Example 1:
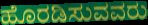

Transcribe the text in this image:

ಹೊರಡಿಸುವವರು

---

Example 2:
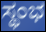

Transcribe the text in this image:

ಸ್ಥಂಭ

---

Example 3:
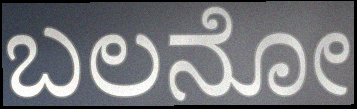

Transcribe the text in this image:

ಬಲನೋ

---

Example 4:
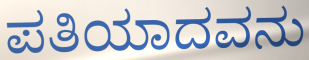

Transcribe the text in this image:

ಪತಿಯಾದವನು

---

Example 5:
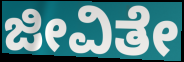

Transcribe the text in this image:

ಜೀವಿತೇ